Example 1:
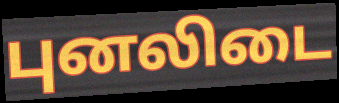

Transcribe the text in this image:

புனலிடை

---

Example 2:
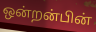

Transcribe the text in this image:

ஒன்றன்பின்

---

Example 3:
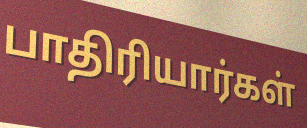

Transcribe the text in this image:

பாதிரியார்கள்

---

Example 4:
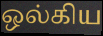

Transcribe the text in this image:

ஒல்கிய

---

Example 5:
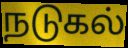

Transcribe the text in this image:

நடுகல்